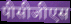
पीसीजीएस